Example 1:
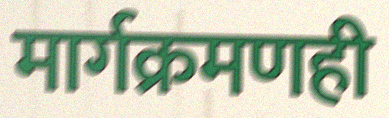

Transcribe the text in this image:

मार्गक्रमणही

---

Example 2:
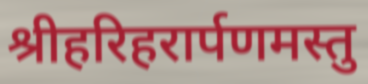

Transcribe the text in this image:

श्रीहरिहरार्पणमस्तु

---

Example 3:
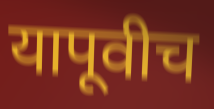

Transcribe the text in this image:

यापूवीच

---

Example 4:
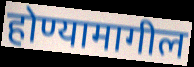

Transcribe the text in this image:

होण्यामागील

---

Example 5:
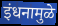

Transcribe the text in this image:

इंधनामुळे